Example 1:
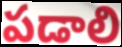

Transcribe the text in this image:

పడాలి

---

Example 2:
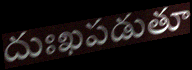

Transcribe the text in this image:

దుఃఖపడుతూ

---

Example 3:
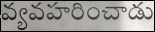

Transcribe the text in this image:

వ్యవహరించాడు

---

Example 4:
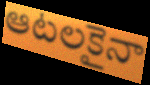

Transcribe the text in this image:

ఆటలకైనా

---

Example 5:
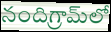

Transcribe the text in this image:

నందిగ్రామ్‌లో